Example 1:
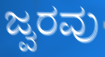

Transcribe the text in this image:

ಜ್ವರವು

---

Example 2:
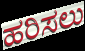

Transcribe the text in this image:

ಹರಿಸಲು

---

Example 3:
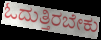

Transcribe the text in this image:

ಓದುತ್ತಿರಬೇಕು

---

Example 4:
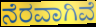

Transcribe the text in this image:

ನೆರವಾಗಿವೆ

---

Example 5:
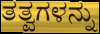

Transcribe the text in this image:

ತತ್ವಗಳನ್ನು